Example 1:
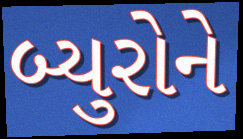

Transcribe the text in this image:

બ્યુરોને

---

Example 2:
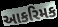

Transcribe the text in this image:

આકરિમક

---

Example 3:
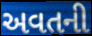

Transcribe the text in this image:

અવતની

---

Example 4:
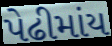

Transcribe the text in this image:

પેઢીમાંય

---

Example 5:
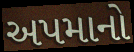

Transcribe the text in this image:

અપમાનો